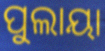
ପୁଲାୟା